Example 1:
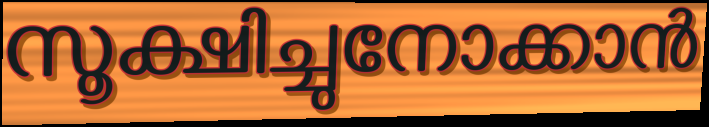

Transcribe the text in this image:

സൂക്ഷിച്ചുനോക്കാൻ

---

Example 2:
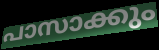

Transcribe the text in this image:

പാസാക്കും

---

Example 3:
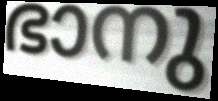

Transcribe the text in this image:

ഭാനു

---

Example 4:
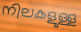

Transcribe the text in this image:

നിലകളുള്ള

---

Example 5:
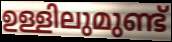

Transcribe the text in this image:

ഉള്ളിലുമുണ്ട്